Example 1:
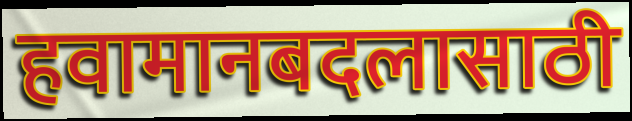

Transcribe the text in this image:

हवामानबदलासाठी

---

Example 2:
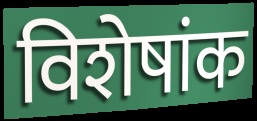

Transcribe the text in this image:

विशेषांक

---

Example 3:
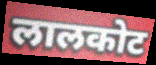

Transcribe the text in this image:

लालकोट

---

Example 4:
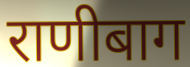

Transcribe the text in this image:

राणीबाग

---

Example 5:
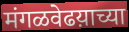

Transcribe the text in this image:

मंगळवेढय़ाच्या